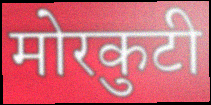
मोरकुटी